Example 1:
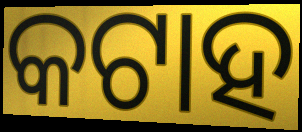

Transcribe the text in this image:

କଟାହ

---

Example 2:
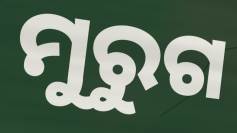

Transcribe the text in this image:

ମୁରୁଗ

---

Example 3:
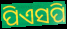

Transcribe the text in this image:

ପିଏସପି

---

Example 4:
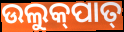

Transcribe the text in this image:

ଉଲୁକ୍‌ପାତ୍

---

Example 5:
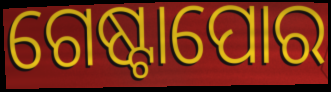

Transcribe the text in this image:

ଗେଷ୍ଟାପୋର